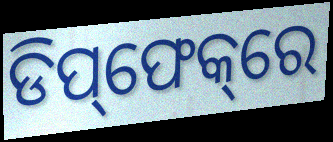
ଡିପ୍‌ଫେକ୍‌ରେ